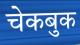
चेकबुक